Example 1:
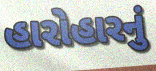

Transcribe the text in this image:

હારોહારનું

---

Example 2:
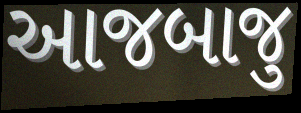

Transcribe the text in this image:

આજબાજુ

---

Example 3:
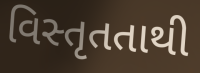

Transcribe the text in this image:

વિસ્તૃતતાથી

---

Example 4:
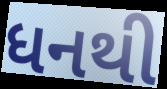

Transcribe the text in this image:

ધનથી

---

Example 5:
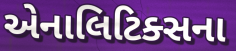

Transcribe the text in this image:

એનાલિટિક્સના